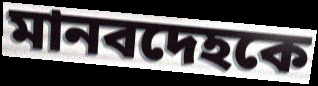
মানবদেহকে